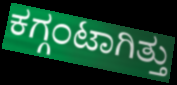
ಕಗ್ಗಂಟಾಗಿತ್ತು